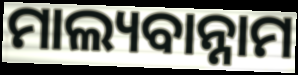
ମାଲ୍ୟବାନ୍ନାମ